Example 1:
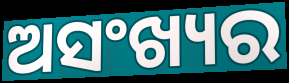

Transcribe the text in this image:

ଅସଂଖ୍ୟର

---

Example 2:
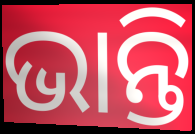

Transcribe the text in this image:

ଭାନ୍ତି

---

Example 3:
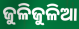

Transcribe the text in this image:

ଜୁଳିଜୁଳିଆ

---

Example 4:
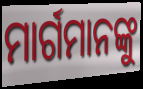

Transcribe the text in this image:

ମାର୍ଗମାନଙ୍କୁ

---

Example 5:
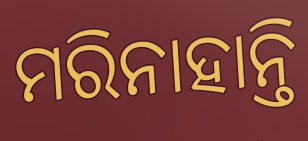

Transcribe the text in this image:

ମରିନାହାନ୍ତି